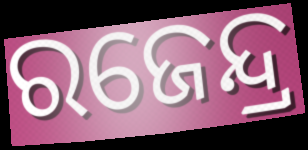
ରଜେନ୍ଦ୍ର